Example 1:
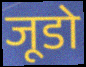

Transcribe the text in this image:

जूडो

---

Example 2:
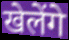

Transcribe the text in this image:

खेलेंगे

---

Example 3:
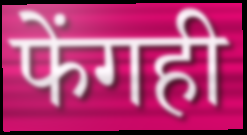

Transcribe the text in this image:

फेंगही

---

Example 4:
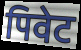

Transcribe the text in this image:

पिवेट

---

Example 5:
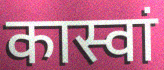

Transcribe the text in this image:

कास्वां